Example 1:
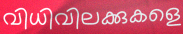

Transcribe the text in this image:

വിധിവിലക്കുകളെ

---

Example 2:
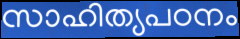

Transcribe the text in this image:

സാഹിത്യപഠനം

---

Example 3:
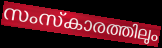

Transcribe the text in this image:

സംസ്‌കാരത്തിലും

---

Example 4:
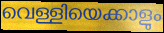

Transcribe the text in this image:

വെള്ളിയെക്കാളും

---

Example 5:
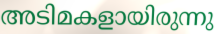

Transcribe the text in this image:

അടിമകളായിരുന്നു